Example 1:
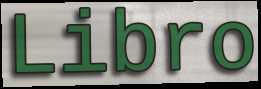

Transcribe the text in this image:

Libro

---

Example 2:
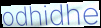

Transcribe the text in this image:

odhidhe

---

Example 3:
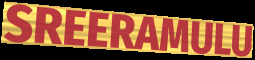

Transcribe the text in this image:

SREERAMULU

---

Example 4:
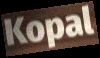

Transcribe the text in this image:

Kopal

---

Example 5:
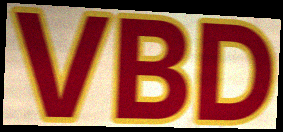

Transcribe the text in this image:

VBD